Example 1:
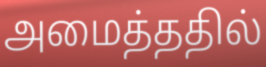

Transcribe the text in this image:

அமைத்ததில்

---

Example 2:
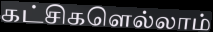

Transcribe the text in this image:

கட்சிகளெல்லாம்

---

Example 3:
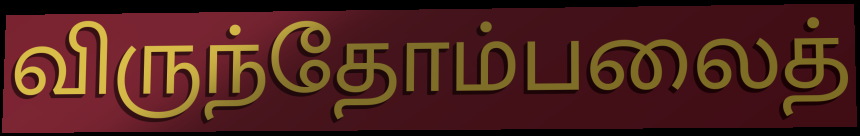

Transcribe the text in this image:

விருந்தோம்பலைத்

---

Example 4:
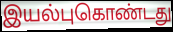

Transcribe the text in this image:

இயல்புகொண்டது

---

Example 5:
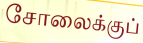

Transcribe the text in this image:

சோலைக்குப்